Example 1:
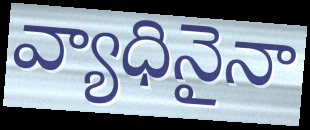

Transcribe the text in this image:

వ్యాధినైనా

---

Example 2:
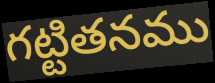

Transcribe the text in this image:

గట్టితనము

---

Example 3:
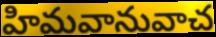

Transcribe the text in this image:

హిమవానువాచ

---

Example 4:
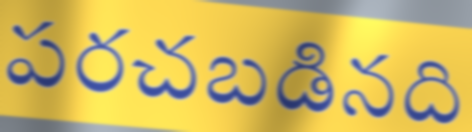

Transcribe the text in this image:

పరచబడినది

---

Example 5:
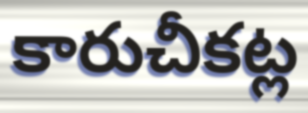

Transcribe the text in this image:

కారుచీకట్ల